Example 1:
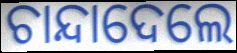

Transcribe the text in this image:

ଚାନ୍ଦାଦେଲେ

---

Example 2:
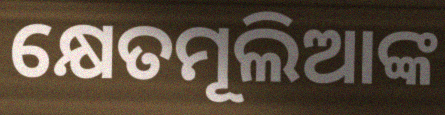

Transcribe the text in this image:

କ୍ଷେତମୂଲିଆଙ୍କ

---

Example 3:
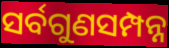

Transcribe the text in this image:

ସର୍ବଗୁଣସମ୍ପନ୍ନ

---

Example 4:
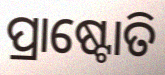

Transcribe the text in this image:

ପ୍ରାଷ୍ଟୋତି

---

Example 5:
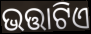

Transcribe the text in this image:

ଭତ୍ତାଟିଏ